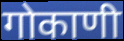
गोकाणी